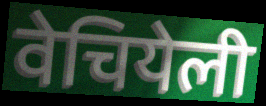
वेचियेली